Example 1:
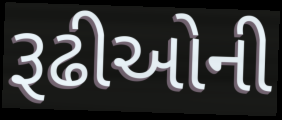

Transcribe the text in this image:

રૂઢીઓની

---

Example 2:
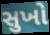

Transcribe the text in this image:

સુખો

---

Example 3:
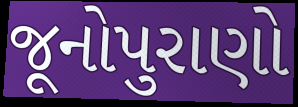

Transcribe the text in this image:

જૂનોપુરાણો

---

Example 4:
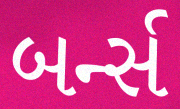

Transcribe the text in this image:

બર્ન્સ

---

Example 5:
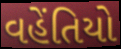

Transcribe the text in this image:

વહેંતિયો